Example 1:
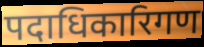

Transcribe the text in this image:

पदाधिकारिगण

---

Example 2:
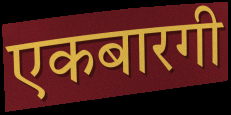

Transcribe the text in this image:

एकबारगी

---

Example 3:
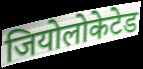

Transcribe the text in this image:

जियोलोकेटेड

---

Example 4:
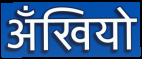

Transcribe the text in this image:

अँखियो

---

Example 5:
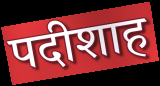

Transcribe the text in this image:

पदीशाह